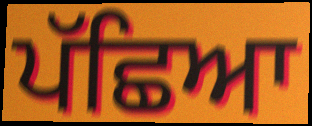
ਪੱਛਿਆ